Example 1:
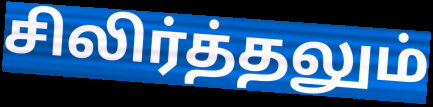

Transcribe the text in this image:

சிலிர்த்தலும்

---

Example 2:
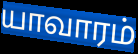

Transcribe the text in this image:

யாவாரம்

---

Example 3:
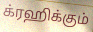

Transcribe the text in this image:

க்ரஹிக்கும்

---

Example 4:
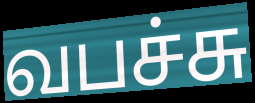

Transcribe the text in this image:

வபச்சு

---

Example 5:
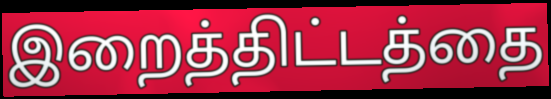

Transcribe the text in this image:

இறைத்திட்டத்தை